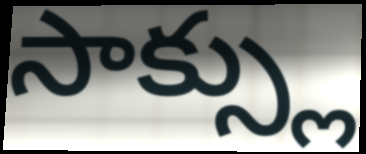
సాక్స్లు